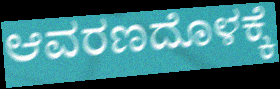
ಆವರಣದೊಳಕ್ಕೆ